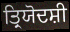
ਤ੍ਰਿਯੋਦਸ਼ੀ